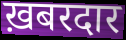
ख़बरदार